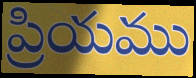
ప్రియము